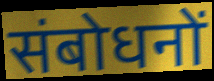
संबोधनों